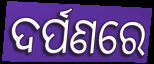
ଦର୍ପଣରେ